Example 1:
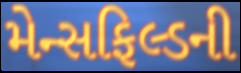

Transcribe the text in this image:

મેન્સફિલ્ડની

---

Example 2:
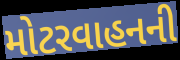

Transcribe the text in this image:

મોટરવાહનની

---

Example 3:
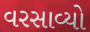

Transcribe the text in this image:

વરસાવ્યો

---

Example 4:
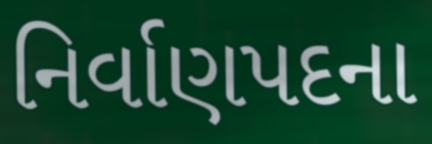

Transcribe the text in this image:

નિર્વાણપદના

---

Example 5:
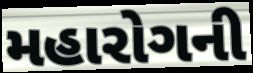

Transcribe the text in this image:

મહારોગની